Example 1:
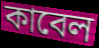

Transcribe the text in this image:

কাবেল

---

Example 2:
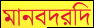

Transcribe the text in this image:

মানবদরদি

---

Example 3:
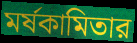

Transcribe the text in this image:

মর্ষকামিতার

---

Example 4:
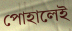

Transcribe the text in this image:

পোহালেই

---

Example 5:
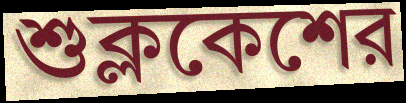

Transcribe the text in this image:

শুক্লকেশের